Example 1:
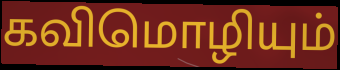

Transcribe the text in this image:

கவிமொழியும்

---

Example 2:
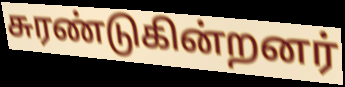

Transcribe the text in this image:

சுரண்டுகின்றனர்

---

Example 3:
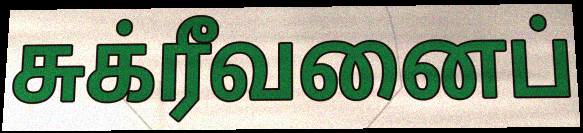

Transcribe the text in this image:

சுக்ரீவனைப்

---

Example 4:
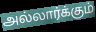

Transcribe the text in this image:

அல்லார்க்கும்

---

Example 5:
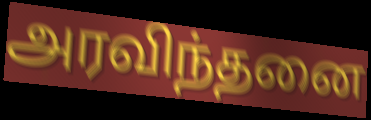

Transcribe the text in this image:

அரவிந்தனை